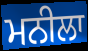
ਮਨੀਲਾ